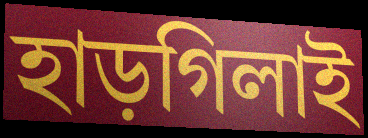
হাড়গিলাই